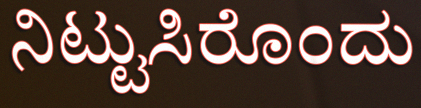
ನಿಟ್ಟುಸಿರೊಂದು